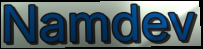
Namdev